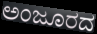
ಅಂಜೂರದ